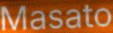
Masato